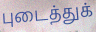
புடைத்துக்